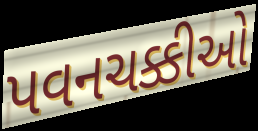
પવનચક્કીઓ